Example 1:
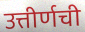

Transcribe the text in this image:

उत्तीर्णची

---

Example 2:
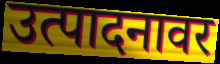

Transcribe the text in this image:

उत्पादनावर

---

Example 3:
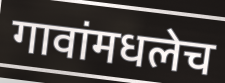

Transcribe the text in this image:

गावांमधलेच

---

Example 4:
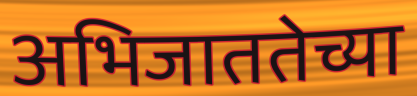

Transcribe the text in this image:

अभिजाततेच्या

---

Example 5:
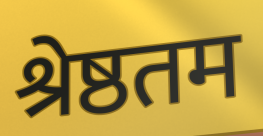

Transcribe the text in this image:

श्रेष्ठतम